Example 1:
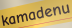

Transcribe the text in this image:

kamadenu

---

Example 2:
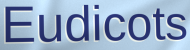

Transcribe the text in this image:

Eudicots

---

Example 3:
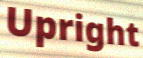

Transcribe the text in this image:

Upright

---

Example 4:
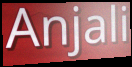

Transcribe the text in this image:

Anjali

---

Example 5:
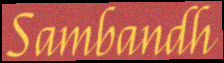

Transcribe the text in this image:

Sambandh